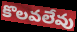
కొలవలేవు